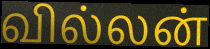
வில்லன்